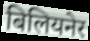
बिलियनेर